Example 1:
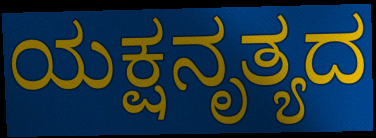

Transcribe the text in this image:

ಯಕ್ಷನೃತ್ಯದ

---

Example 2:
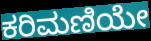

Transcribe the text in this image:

ಕರಿಮಣಿಯೇ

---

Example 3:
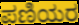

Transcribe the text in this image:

ಪಣಿಯರ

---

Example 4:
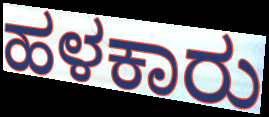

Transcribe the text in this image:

ಹಳಕಾರು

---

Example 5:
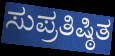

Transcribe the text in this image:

ಸುಪ್ರತಿಷ್ಠಿತ